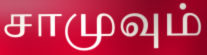
சாமுவும்